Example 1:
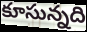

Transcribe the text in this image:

కూసున్నది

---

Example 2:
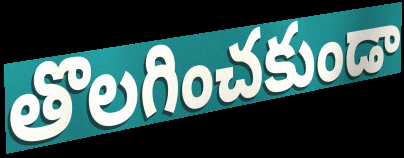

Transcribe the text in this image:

తొలగించకుండా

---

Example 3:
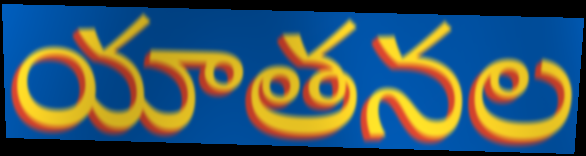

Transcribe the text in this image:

యాతనల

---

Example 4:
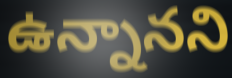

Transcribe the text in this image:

ఉన్నానని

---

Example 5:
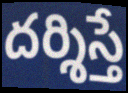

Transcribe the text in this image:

దర్శిస్తే